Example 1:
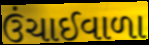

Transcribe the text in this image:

ઉંચાઈવાળા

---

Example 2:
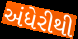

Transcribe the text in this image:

અંધેરીથી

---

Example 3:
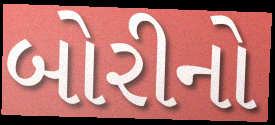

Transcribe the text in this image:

બોરીનો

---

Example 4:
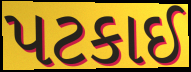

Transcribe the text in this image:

પટકાઈ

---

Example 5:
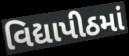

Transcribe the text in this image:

વિદ્યાપીઠમાં